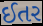
ઈતર